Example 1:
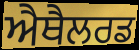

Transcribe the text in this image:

ਐਥੈਲਰਡ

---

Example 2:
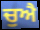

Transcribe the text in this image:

ਚੁਐ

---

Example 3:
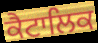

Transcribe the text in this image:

ਕੈਟਾਲਿਕ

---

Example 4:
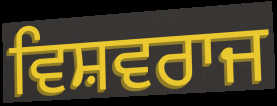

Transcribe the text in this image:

ਵਿਸ਼ਵਰਾਜ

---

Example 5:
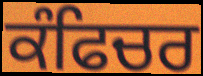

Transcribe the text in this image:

ਕੰਫਿਚਰ